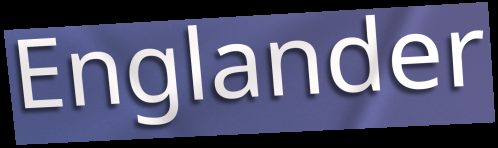
Englander